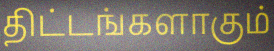
திட்டங்களாகும்